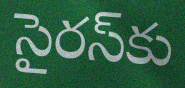
సైరస్‌కు